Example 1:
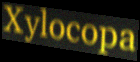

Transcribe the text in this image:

Xylocopa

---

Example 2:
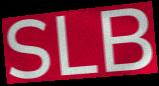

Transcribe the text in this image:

SLB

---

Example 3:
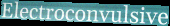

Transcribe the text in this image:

Electroconvulsive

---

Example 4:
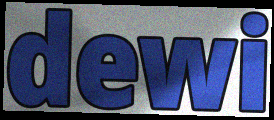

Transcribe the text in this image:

dewi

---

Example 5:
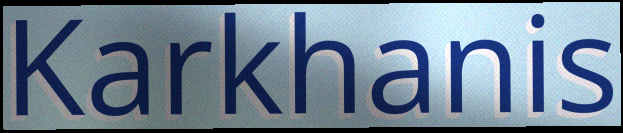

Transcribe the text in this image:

Karkhanis